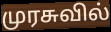
முரசுவில்